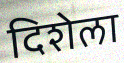
दिशेला